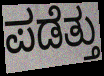
ಪಡೆತ್ತು